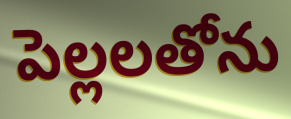
పెల్లలతోను